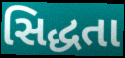
સિદ્ધતા